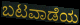
ಬಟವಾಡೆಯ